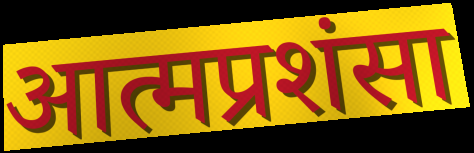
आत्मप्रशंसा